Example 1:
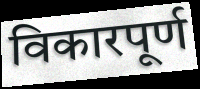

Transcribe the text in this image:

विकारपूर्ण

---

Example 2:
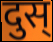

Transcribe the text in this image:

दुस्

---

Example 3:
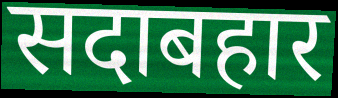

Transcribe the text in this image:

सदाबहार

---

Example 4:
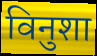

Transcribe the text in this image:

विनुशा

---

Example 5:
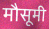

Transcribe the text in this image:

मौसूमी